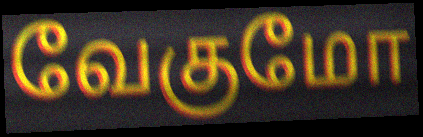
வேகுமோ